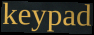
keypad